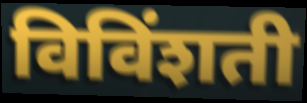
विविंशती